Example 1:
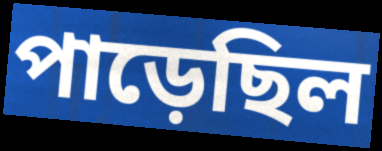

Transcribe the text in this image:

পাড়েছিল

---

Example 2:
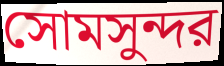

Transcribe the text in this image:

সোমসুন্দর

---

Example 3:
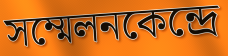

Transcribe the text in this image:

সম্মেলনকেন্দ্রে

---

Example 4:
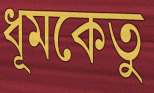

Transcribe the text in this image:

ধূমকেতু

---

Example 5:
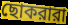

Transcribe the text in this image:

ছোকরারা